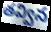
తవ్విన